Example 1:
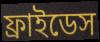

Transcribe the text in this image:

ফ্রাইডেস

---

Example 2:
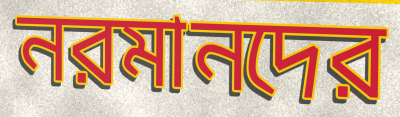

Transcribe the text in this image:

নরমানদের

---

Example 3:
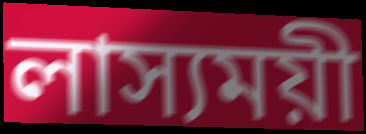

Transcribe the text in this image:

লাস্যময়ী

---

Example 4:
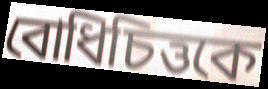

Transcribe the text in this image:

বোধিচিত্তকে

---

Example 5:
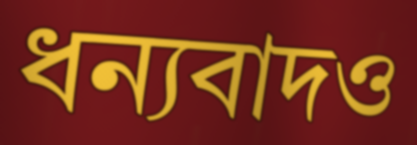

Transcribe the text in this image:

ধন্যবাদও